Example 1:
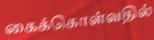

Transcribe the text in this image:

கைக்கொள்வதில்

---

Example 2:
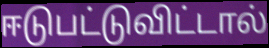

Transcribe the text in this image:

ஈடுபட்டுவிட்டால்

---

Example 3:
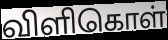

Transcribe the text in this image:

விளிகொள்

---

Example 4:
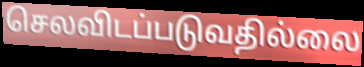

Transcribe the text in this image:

செலவிடப்படுவதில்லை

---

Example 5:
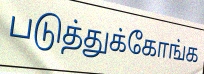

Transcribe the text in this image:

படுத்துக்கோங்க